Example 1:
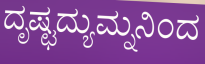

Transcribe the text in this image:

ದೃಷ್ಟದ್ಯುಮ್ನನಿಂದ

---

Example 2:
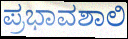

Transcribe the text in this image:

ಪ್ರಭಾವಶಾಲಿ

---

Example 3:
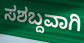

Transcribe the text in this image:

ಸಶಬ್ದವಾಗಿ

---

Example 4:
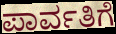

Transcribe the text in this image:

ಪಾರ್ವತಿಗೆ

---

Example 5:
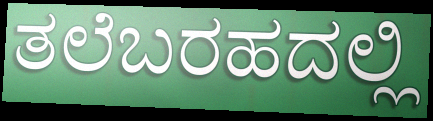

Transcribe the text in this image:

ತಲೆಬರಹದಲ್ಲಿ